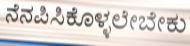
ನೆನಪಿಸಿಕೊಳ್ಳಲೇಬೇಕು